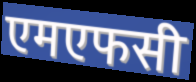
एमएफसी